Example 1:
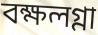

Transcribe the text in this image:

বক্ষলগ্না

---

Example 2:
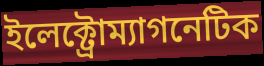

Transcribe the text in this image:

ইলেক্ট্রোম্যাগনেটিক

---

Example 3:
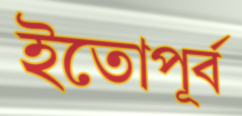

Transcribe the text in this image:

ইতোপূর্ব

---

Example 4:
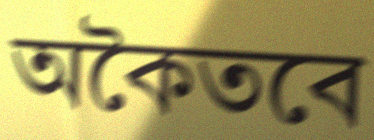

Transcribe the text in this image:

অকৈতবে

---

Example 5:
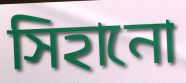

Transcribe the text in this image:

সিহানো